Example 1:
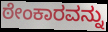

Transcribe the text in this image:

ಠೇಂಕಾರವನ್ನು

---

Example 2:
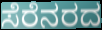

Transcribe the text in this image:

ಸೆರೆನರದ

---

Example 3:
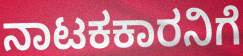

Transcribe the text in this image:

ನಾಟಕಕಾರನಿಗೆ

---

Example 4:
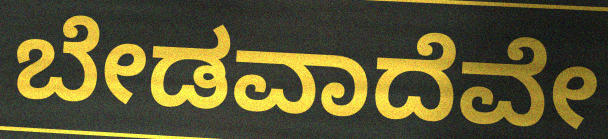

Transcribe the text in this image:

ಬೇಡವಾದೆವೇ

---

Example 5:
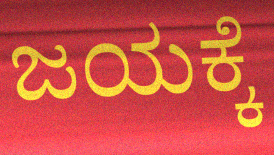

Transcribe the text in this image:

ಜಯಕ್ಕೆ